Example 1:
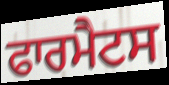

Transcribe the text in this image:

ਫਾਰਮੈਟਸ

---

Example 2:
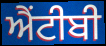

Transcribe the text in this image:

ਐਂਟੀਬੀ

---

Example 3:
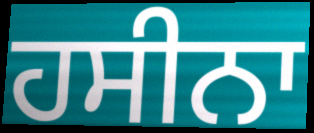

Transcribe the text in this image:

ਹਸੀਨਾ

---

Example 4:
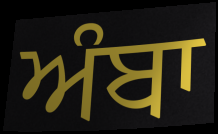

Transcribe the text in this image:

ਅੰਬਾ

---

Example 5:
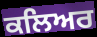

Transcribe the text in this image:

ਕਲਿਅਰ